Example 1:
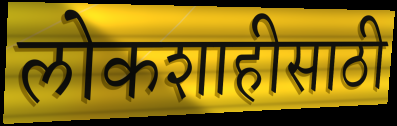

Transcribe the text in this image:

लोकशाहीसाठी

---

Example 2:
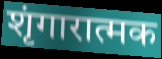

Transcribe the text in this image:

शृंगारात्मक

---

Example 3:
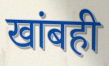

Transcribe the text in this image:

खांबही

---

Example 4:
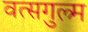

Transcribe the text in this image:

वत्सगुल्म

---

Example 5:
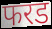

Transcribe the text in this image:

फरड